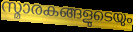
സ്മാരകങ്ങളുടെയും